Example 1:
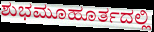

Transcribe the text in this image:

ಶುಭಮೂಹೂರ್ತದಲ್ಲಿ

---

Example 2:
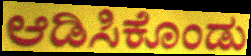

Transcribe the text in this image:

ಆಡಿಸಿಕೊಂಡು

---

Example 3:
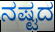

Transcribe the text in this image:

ನಷ್ಟದ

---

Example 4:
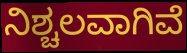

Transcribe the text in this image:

ನಿಶ್ಚಲವಾಗಿವೆ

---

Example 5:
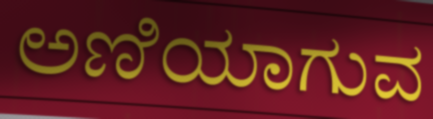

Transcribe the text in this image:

ಅಣಿಯಾಗುವ